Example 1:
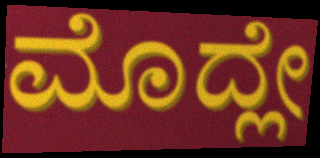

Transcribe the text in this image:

ಮೊದ್ಲೇ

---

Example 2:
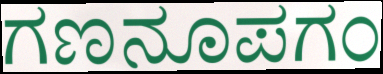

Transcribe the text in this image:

ಗಣನೂಪಗಂ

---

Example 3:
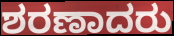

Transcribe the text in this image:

ಶರಣಾದರು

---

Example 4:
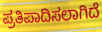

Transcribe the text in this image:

ಪ್ರತಿಪಾದಿಸಲಾಗಿದೆ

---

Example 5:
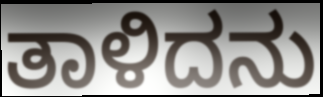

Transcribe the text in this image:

ತಾಳಿದನು